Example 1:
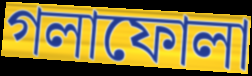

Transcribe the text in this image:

গলাফোলা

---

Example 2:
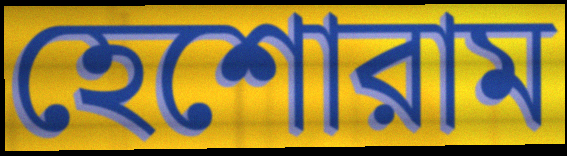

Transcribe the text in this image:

হেশোরাম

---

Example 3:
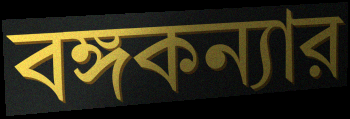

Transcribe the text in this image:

বঙ্গকন্যার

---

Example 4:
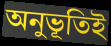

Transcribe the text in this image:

অনুভূতিই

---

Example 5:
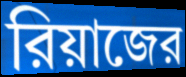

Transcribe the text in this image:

রিয়াজের